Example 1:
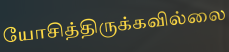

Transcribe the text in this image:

யோசித்திருக்கவில்லை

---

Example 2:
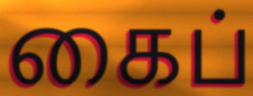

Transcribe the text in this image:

கைப்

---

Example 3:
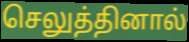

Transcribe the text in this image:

செலுத்தினால்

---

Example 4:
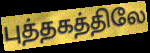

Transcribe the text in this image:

புத்தகத்திலே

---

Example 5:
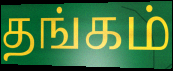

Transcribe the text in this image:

தங்கம்